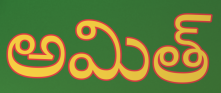
అమిత్